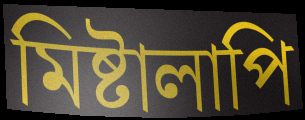
মিষ্টালাপি